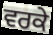
ਵਰਕੇ